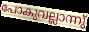
പോകുവല്ലാന്നു്